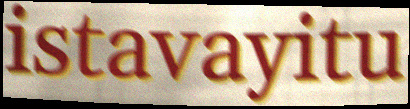
istavayitu